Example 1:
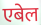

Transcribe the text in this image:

एबेल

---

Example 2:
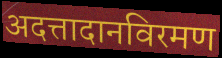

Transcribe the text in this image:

अदत्तादानविरमण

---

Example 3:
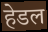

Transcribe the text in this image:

हेडल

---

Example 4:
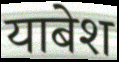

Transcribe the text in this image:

याबेश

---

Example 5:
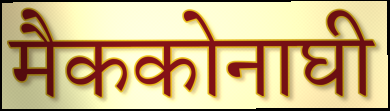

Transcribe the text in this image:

मैककोनाघी